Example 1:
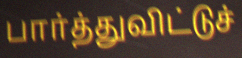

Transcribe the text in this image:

பார்த்துவிட்டுச்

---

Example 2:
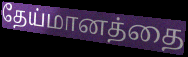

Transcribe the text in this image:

தேய்மானத்தை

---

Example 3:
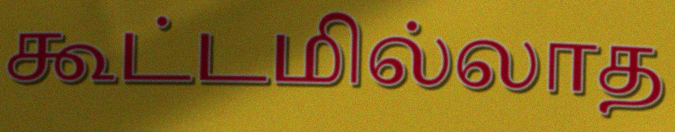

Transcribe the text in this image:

கூட்டமில்லாத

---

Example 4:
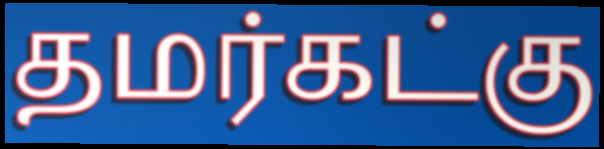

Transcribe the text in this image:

தமர்கட்கு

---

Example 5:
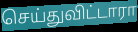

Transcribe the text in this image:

செய்துவிட்டாரா